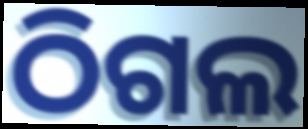
ଠିଗଲ